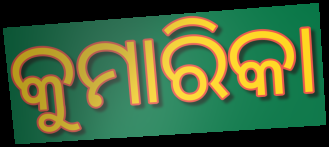
କୁମାରିକା